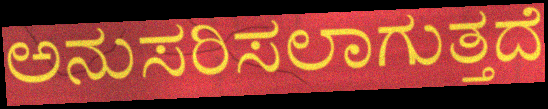
ಅನುಸರಿಸಲಾಗುತ್ತದೆ